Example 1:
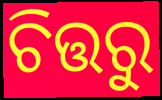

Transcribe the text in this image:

ଚିତ୍ତରୁ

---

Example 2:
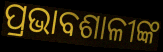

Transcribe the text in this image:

ପ୍ରଭାବଶାଳୀଙ୍କ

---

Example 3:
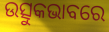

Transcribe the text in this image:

ଉତ୍ସୁକଭାବରେ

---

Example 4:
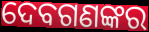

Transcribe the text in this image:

ଦେବଗଣଙ୍କର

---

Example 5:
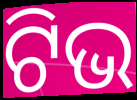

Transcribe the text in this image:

ଟିଭ